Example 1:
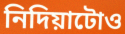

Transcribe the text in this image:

নিদিয়াটোও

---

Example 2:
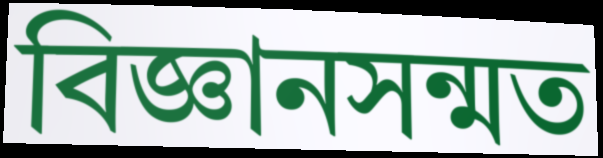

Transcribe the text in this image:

বিজ্ঞানসন্মত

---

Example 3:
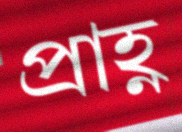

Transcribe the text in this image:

প্ৰাহ্ণ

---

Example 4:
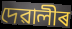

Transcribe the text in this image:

দেৱালীৰ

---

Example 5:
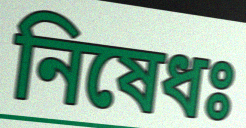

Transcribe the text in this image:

নিষেধঃ